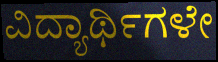
ವಿದ್ಯಾರ್ಥಿಗಳೇ